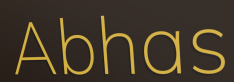
Abhas